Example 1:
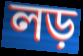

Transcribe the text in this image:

লড়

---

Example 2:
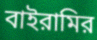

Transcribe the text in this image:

বাইরামির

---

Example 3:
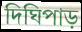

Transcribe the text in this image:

দিঘিপাড়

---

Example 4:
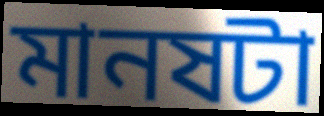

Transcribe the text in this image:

মানষটা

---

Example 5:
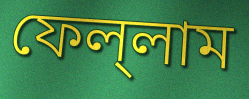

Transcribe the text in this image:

ফেল্‌লাম